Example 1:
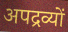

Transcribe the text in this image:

अपद्रव्यों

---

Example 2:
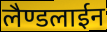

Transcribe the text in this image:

लैण्डलाईन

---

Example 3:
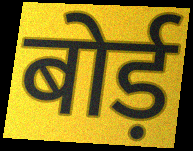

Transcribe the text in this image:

बोर्ड़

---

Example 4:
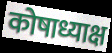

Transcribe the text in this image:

कोषाध्याक्ष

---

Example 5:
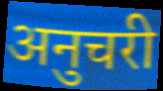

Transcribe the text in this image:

अनुचरी